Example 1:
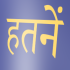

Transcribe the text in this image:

हतनें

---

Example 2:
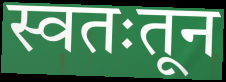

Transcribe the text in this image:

स्वतःतून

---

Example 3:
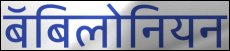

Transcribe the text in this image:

बॅबिलोनियन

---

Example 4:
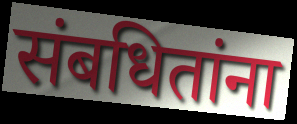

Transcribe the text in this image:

संबधितांना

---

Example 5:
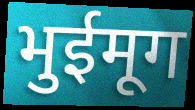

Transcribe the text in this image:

भुईमूग